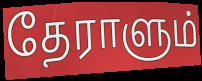
தேராளும்